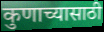
कुणाच्यासाठी